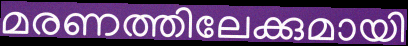
മരണത്തിലേക്കുമായി